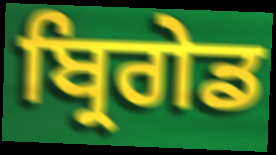
ਬ੍ਰਿਗੇਡ